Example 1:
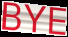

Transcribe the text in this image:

BYE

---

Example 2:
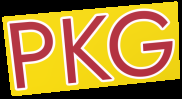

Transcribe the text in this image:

PKG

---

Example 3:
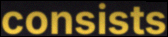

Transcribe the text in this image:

consists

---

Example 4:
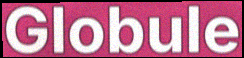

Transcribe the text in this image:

Globule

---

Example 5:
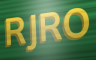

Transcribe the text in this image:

RJRO